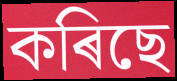
কৰিছে